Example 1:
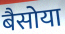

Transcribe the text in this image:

बैसोया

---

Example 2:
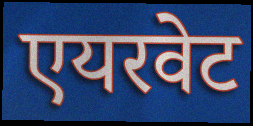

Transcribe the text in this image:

एयरवेट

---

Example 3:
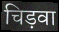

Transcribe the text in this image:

चिड़वा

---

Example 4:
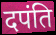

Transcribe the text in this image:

दपंति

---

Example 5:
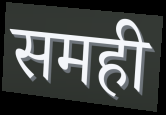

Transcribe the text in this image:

समही